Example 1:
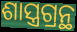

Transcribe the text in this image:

ଶାସ୍ତ୍ରଗ୍ରନ୍ଥ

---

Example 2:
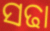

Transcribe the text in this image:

ସଢା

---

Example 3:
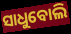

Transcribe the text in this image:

ସାଧୁବୋଲି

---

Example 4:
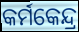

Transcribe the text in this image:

କର୍ମକେନ୍ଦ୍ର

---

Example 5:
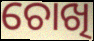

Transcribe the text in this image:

ଚୋଖି